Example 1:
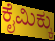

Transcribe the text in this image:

ಕೈಮಿಕ್ಕು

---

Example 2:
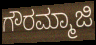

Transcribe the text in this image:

ಗೌರಮ್ಮಾಜಿ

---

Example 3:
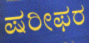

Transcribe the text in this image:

ಷರೀಫರ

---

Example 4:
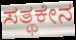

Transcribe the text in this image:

ಸತ್ಥಕೇನ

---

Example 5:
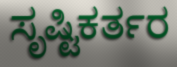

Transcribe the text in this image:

ಸೃಷ್ಟಿಕರ್ತರ